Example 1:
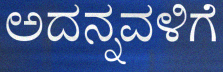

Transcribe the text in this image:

ಅದನ್ನವಳಿಗೆ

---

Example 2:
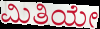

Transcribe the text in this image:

ಮಿತಿಯೇ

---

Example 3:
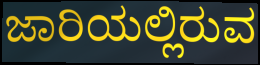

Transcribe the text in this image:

ಜಾರಿಯಲ್ಲಿರುವ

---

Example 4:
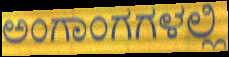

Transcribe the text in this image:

ಅಂಗಾಂಗಗಳಲ್ಲಿ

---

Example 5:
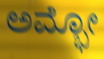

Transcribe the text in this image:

ಅಮ್ಭೋ